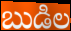
బుడిల